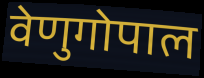
वेणुगोपाल